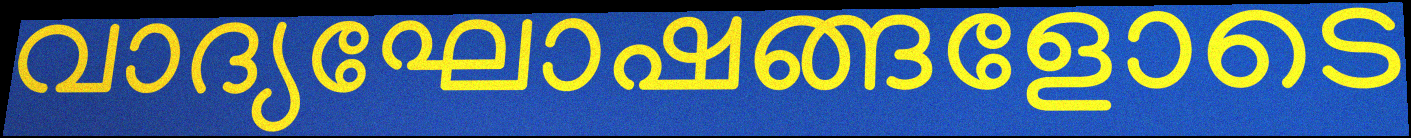
വാദ്യഘോഷങ്ങളോടെ